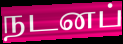
நடனப்